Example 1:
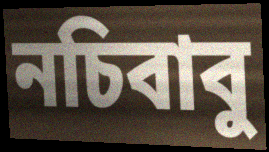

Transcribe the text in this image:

নচিবাবু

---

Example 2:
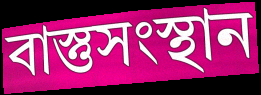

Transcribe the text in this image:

বাস্তুসংস্থান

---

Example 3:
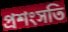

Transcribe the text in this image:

প্রশংসতি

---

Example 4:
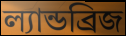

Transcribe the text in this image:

ল্যান্ডব্রিজ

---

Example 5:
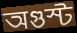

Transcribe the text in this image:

অগুস্ট